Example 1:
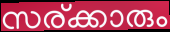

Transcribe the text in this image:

സര്ക്കാരും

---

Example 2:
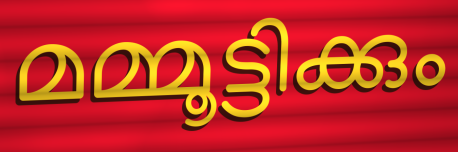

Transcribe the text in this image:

മമ്മൂട്ടിക്കും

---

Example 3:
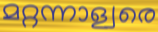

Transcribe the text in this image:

മറ്റന്നാള്വരെ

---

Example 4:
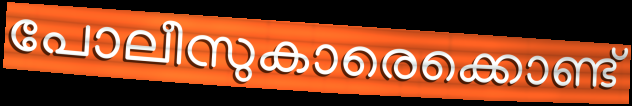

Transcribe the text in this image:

പോലീസുകാരെക്കൊണ്ട്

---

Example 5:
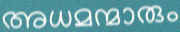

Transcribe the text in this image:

അധമന്മാരും